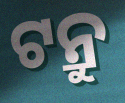
ଟନ୍ରୁ